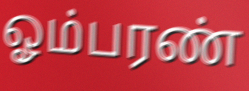
ஓம்பரண்